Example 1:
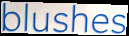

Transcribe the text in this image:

blushes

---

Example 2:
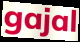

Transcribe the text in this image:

gajal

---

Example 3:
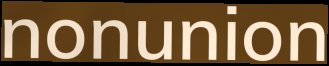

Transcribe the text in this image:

nonunion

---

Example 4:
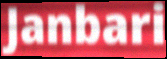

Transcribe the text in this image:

Janbari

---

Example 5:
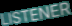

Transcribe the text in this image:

LISTENER